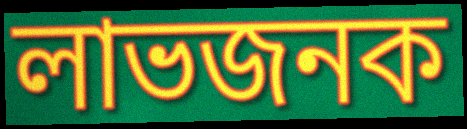
লাভজনক